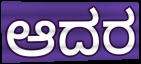
ಆದರ